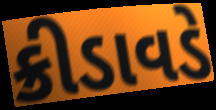
ક્રીડાવડે